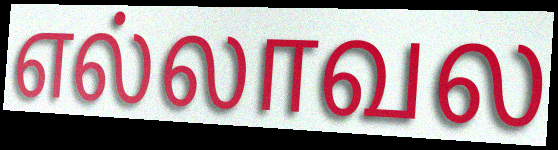
எல்லாவல